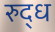
रुद्ध